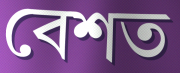
বেশত